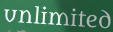
unlimited